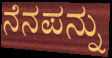
ನೆನಪನ್ನು